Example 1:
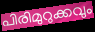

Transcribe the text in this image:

പിരിമുറുക്കവും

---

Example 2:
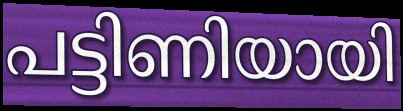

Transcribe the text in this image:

പട്ടിണിയായി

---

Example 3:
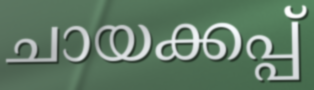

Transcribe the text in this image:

ചായക്കപ്പ്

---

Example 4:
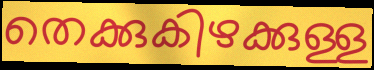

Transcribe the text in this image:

തെക്കുകിഴക്കുള്ള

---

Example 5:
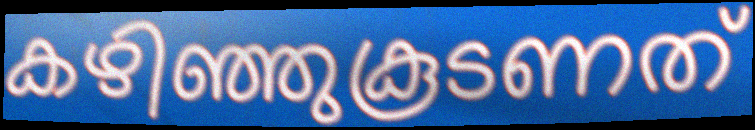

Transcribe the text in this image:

കഴിഞ്ഞുകൂടണത്